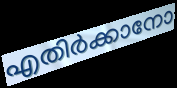
എതിർക്കാനോ